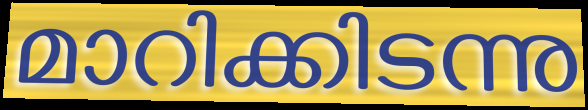
മാറിക്കിടന്നു